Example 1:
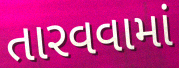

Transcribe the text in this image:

તારવવામાં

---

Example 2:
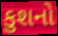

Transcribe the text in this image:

કુશનો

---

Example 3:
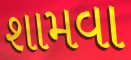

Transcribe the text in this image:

શામવા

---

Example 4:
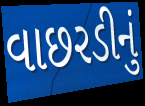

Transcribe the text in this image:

વાછરડીનું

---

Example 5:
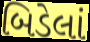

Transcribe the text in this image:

બિડેલાં